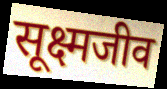
सूक्ष्मजीव